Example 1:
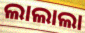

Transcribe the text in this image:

ଲାଲାଲା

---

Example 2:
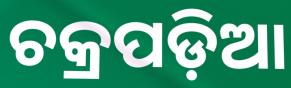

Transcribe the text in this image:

ଚକ୍ରପଡ଼ିଆ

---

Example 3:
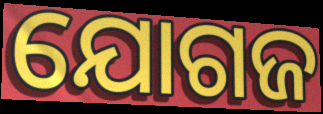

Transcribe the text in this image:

ଯୋଗଜ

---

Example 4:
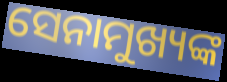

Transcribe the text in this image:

ସେନାମୁଖ୍ୟଙ୍କ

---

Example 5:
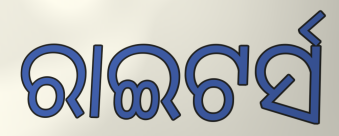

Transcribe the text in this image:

ରାଇଟର୍ସ